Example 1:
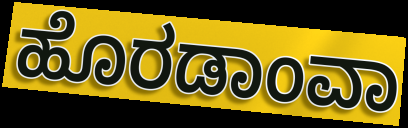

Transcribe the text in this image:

ಹೊರಡಾಂವಾ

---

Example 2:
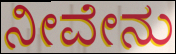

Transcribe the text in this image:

ನೀವೇನು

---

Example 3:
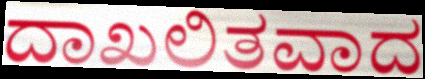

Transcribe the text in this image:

ದಾಖಲಿತವಾದ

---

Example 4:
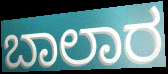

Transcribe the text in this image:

ಬಾಲಾರ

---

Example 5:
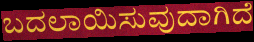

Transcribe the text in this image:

ಬದಲಾಯಿಸುವುದಾಗಿದೆ